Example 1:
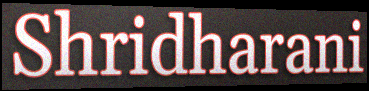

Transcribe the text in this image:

Shridharani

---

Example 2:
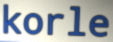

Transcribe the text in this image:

korle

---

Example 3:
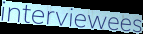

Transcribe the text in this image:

interviewees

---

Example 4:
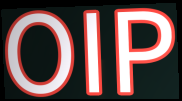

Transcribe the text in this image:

OIP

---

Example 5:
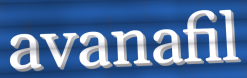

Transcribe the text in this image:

avanafil